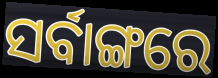
ସର୍ବାଙ୍ଗରେ